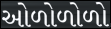
ઓળોળોળો